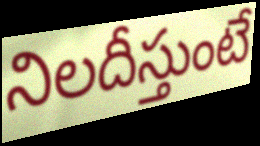
నిలదీస్తుంటే